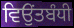
ਵਿਉਂਤਬੰਧੀ